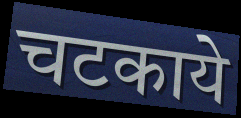
चटकाये